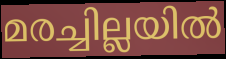
മരച്ചില്ലയിൽ